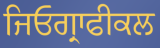
ਜਿਓਗ੍ਰਾਫੀਕਲ